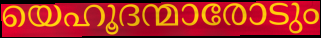
യെഹൂദന്മാരോടും